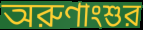
অরুণাংশুর